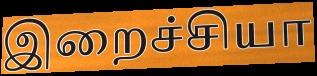
இறைச்சியா